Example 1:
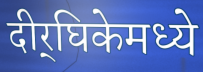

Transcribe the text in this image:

दीर्घिकेमध्ये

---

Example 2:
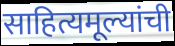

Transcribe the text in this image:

साहित्यमूल्यांची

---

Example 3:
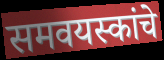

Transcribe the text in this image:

समवयस्कांचे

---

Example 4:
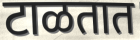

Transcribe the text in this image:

टाळतात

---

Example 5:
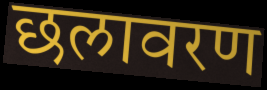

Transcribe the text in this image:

छलावरण